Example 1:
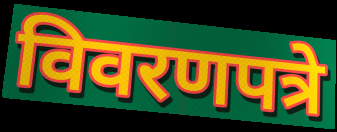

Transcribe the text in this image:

विवरणपत्रे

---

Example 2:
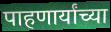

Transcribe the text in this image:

पाहणार्यांच्या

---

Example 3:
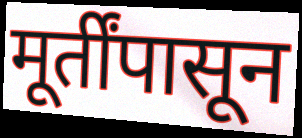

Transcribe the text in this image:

मूर्तींपासून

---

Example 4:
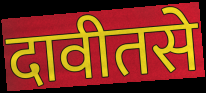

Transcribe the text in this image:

दावीतसे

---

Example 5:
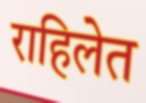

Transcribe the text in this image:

राहिलेत